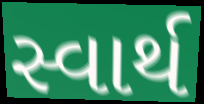
સ્વાર્થ